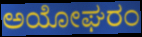
ಅಯೋಘರಂ